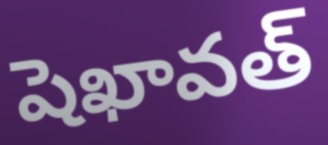
షెఖావత్